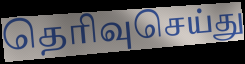
தெரிவுசெய்து